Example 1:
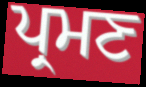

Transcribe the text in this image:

ਪ੍ਰਮਣ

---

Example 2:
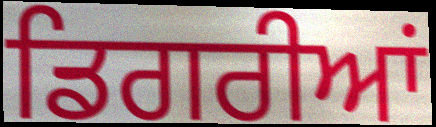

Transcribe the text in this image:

ਡਿਗਰੀਆਂ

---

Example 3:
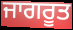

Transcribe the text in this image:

ਜਾਗਰੂਤ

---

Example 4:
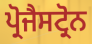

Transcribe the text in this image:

ਪ੍ਰੋਜੈਸਟ੍ਰੋਨ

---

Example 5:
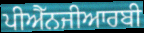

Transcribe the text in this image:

ਪੀਐੱਨਜੀਆਰਬੀ